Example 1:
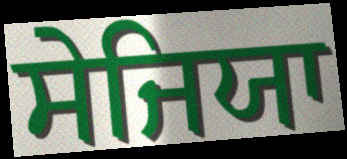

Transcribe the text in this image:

ਸੇਜਿਯਾ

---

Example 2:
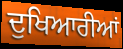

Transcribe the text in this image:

ਦੁਖਿਆਰੀਆਂ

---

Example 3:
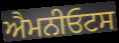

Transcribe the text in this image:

ਐਮਨੀਓਟਸ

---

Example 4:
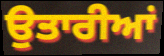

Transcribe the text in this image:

ਉਤਾਰੀਆਂ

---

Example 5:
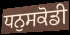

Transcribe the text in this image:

ਧਨੁਸਕੋਡੀ